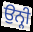
ਉਨ੍ਨੀ